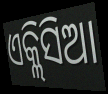
ଏକ୍ଲିସିଆ